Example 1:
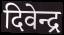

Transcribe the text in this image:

दिवेन्द्र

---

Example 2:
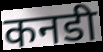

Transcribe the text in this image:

कनडी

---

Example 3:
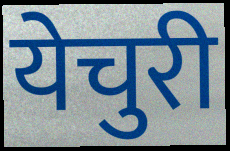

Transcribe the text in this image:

येचुरी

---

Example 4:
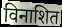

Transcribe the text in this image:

विनाशित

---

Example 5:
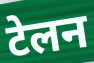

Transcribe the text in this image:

टेलन